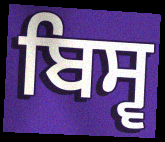
ਬਿਸ੍ਵ